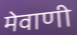
मेवाणी